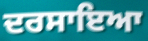
ਦਰਸਾਇਆ